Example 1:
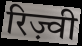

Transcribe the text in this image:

रिज़्वी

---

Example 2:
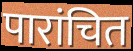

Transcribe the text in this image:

पारांचित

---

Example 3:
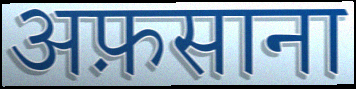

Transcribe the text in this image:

अफ़साना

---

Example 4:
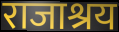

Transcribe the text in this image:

राजाश्रय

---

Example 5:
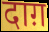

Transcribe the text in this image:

दाग़